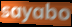
sayabo